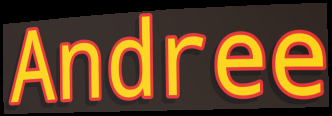
Andree